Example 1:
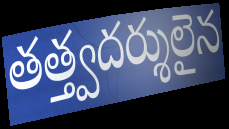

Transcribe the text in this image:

తత్త్వదర్శులైన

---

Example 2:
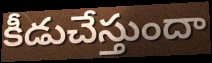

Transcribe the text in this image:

కీడుచేస్తుందా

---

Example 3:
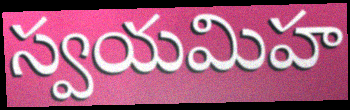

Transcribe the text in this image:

స్వయమిహ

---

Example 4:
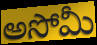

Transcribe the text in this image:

అసోమీ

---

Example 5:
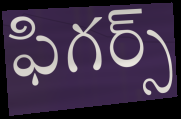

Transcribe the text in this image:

ఫిగర్స్